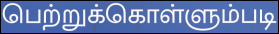
பெற்றுக்கொள்ளும்படி